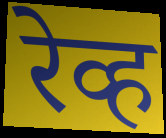
रेव्ह